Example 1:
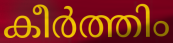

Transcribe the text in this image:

കീർത്തിം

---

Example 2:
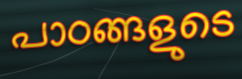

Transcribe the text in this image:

പാഠങ്ങളുടെ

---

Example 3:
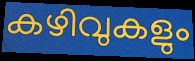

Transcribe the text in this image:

കഴിവുകളും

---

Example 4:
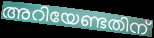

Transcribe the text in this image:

അറിയേണ്ടതിന്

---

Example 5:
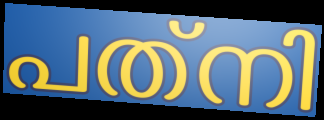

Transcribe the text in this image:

പത്‌നി